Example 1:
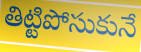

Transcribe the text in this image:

తిట్టిపోసుకునే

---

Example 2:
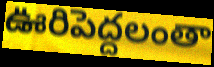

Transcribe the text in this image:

ఊరిపెద్దలంతా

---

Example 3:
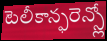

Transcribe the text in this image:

టెలీకాన్ఫరెన్స్లో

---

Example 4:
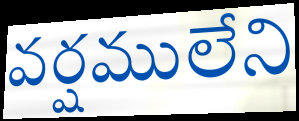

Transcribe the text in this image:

వర్షములేని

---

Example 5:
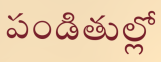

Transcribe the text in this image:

పండితుల్లో